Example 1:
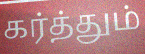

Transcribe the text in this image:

கர்த்தும்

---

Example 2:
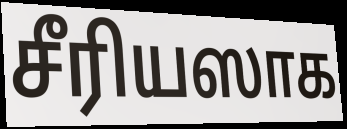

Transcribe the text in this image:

சீரியஸாக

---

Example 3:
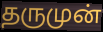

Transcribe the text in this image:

தருமுன்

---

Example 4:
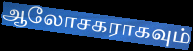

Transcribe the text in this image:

ஆலோசகராகவும்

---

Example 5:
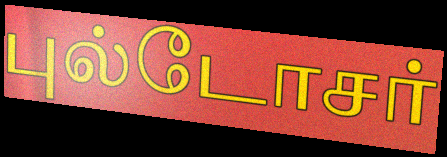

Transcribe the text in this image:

புல்டோசர்